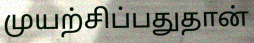
முயற்சிப்பதுதான்